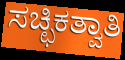
ಸಚ್ಛಿಕತ್ವಾತಿ